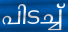
പിടച്ച്